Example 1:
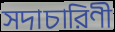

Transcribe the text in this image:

সদাচারিণী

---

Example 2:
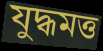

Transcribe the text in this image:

যুদ্ধমত্ত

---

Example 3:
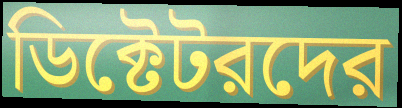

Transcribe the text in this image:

ডিক্টেটরদের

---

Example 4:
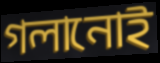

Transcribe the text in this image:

গলানোই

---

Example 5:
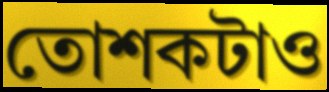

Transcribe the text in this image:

তোশকটাও